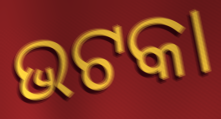
ଭଟକା